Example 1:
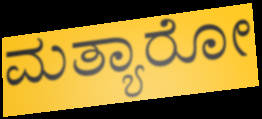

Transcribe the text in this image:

ಮತ್ಯಾರೋ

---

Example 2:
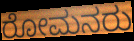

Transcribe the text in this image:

ರೋಮನರು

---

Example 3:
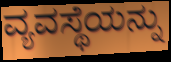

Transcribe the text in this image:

ವ್ಯವಸ್ಥೆಯನ್ನು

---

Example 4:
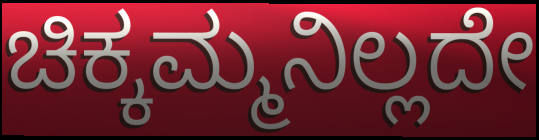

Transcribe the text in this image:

ಚಿಕ್ಕಮ್ಮನಿಲ್ಲದೇ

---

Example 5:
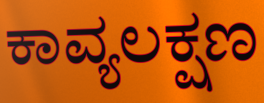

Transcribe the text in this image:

ಕಾವ್ಯಲಕ್ಷಣ